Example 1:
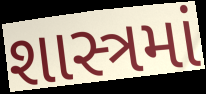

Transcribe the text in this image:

શાસ્ત્રમાં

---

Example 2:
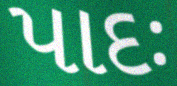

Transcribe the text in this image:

પાદઃ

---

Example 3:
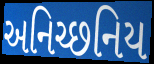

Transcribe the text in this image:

અનિચ્છનિય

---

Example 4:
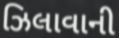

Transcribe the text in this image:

ઝિલાવાની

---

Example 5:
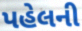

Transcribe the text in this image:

પહેલની